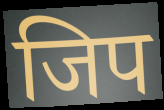
जिप